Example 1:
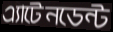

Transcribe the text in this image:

এ্যাটেনডেন্ট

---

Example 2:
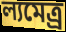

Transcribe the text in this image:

ল্যমেত্র্র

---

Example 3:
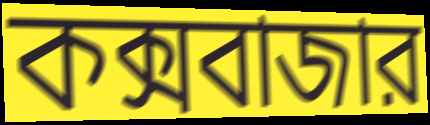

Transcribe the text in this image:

কক্সবাজার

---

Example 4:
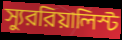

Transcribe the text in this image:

স্যুররিয়ালিস্ট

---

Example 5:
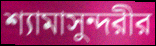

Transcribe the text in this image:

শ্যামাসুন্দরীর